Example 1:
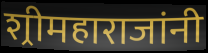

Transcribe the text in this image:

श्रीमहाराजांनी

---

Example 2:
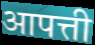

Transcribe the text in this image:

आपत्ती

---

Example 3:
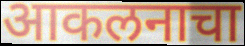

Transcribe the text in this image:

आकलनाचा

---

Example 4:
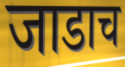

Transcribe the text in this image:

जाडाच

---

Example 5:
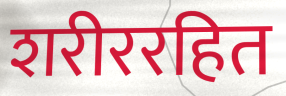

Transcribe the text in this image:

शरीररहित